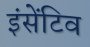
इंसेंटिव